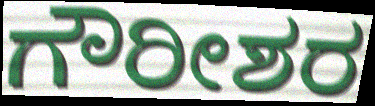
ಗೌರೀಶರ